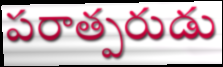
పరాత్పరుడు